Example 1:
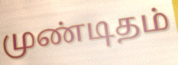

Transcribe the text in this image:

முண்டிதம்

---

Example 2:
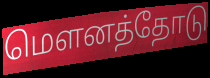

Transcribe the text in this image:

மௌனத்தோடு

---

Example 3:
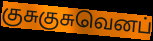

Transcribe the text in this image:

குசுகுசுவெனப்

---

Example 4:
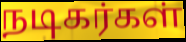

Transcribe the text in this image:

நடிகர்கள்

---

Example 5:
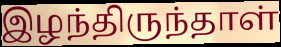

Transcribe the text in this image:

இழந்திருந்தாள்